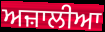
ਅਜ਼ਾਲੀਆ